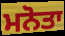
ਮਨੋਤਾ